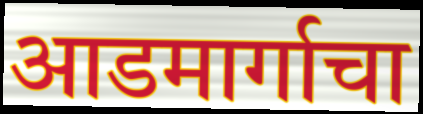
आडमार्गाचा